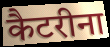
कैटरीना